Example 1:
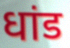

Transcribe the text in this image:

धांड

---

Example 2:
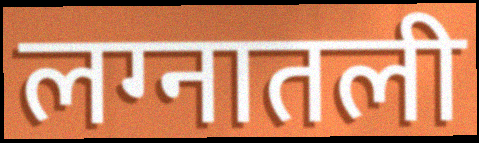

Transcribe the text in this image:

लग्नातली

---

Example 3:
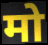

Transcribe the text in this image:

मो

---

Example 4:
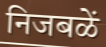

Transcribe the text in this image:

निजबळें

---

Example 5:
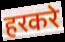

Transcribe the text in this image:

हरकरे